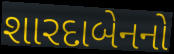
શારદાબેનનો